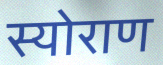
स्योराण